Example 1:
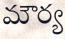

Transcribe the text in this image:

మౌర్య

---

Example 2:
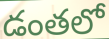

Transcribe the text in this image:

డంతలో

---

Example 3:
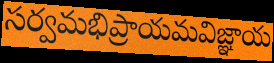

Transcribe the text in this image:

సర్వమభిప్రాయమవిజ్ఞాయ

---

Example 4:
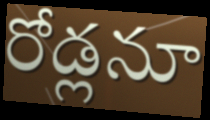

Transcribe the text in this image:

రోడ్లనూ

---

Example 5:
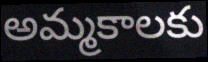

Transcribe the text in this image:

అమ్మకాలకు